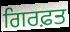
ਗਿਰਫ਼ਤ